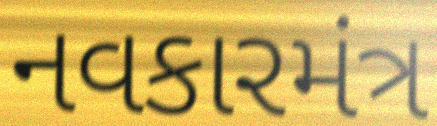
નવકારમંત્ર